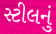
સ્ટીલનું